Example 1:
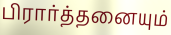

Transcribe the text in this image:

பிரார்த்தனையும்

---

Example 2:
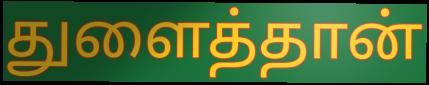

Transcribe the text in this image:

துளைத்தான்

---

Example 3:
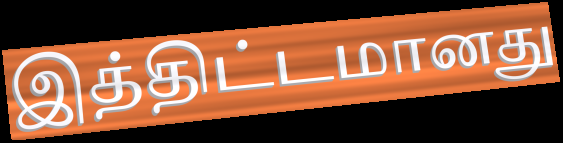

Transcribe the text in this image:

இத்திட்டமானது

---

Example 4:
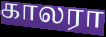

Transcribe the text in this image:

காலரா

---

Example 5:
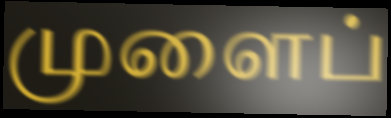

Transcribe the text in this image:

முளைப்